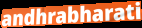
andhrabharati